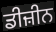
ਡੀਜ਼ੀਨ